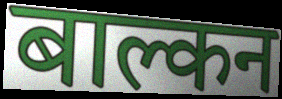
बाल्कन